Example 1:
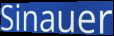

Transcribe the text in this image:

Sinauer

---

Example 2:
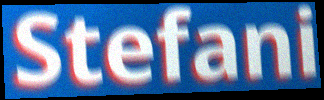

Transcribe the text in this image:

Stefani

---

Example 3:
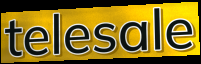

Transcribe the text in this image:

telesale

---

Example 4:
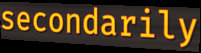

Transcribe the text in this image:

secondarily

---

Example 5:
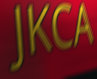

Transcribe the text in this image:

JKCA